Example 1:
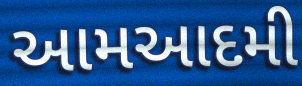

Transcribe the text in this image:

આમઆદમી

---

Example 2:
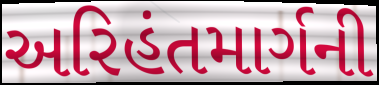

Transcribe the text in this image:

અરિહંતમાર્ગની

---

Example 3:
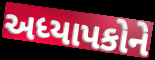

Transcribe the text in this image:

અધ્યાપકોને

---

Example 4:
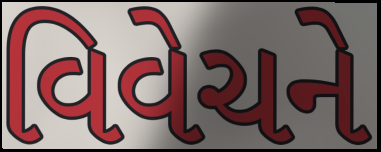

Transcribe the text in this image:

વિવેચને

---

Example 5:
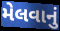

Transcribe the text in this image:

મેલવાનું